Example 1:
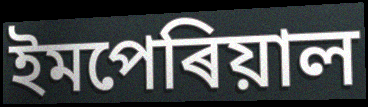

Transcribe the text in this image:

ইমপেৰিয়াল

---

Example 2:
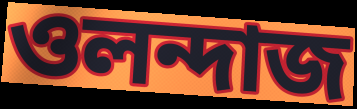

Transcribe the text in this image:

ওলন্দাজ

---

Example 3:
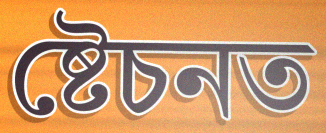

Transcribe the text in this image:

ষ্টেচনত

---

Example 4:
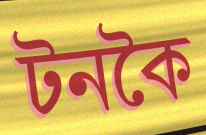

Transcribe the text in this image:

টনকৈ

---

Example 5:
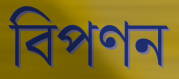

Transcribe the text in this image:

বিপণন